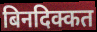
बिनदिक्कत